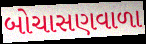
બોચાસણવાળા